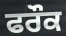
ਫਰੌਕ